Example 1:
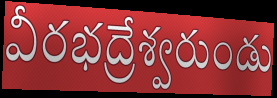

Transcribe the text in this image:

వీరభద్రేశ్వరుండు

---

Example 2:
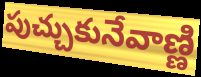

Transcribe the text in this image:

పుచ్చుకునేవాణ్ణి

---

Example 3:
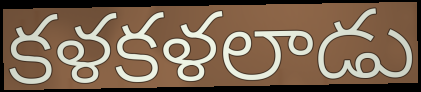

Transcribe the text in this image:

కళకళలాడు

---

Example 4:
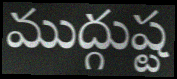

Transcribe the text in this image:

ముద్గుష్ట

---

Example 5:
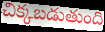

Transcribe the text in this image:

చిక్కబడుతుంది